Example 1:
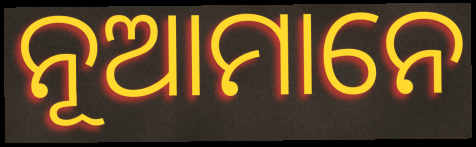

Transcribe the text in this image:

ନୂଆମାନେ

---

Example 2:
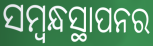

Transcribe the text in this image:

ସମ୍ବନ୍ଧସ୍ଥାପନର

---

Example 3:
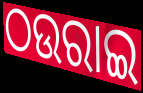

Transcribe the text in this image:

ଠଉରାଇ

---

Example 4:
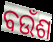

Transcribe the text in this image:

ବଉଁଶ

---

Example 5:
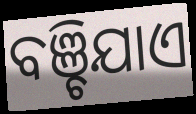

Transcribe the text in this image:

ବଞ୍ଚିଯାଏ